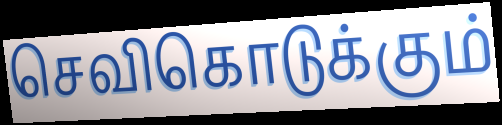
செவிகொடுக்கும்